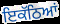
ਇਕੱਠਿਆਂ